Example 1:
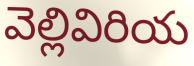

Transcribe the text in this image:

వెల్లివిరియ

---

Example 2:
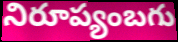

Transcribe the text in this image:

నిరూప్యంబగు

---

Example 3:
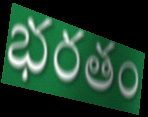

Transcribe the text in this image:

భరతం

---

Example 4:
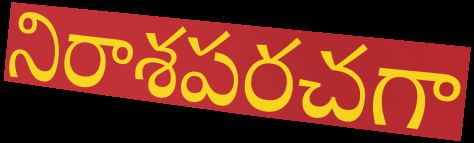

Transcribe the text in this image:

నిరాశపరచగా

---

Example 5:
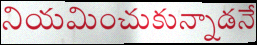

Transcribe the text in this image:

నియమించుకున్నాడనే